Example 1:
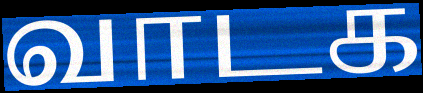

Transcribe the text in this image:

வாடக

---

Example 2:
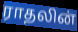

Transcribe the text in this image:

ராதலின்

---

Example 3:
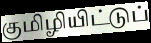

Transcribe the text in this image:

குமிழியிட்டுப்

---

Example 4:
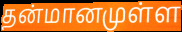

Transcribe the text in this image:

தன்மானமுள்ள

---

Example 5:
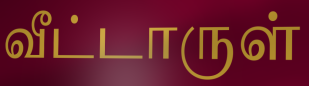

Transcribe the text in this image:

வீட்டாருள்